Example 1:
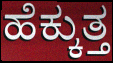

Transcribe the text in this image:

ಹೆಕ್ಕುತ್ತ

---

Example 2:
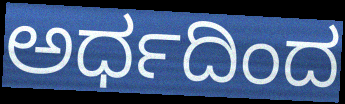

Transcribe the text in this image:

ಅರ್ಧದಿಂದ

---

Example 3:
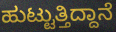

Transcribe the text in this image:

ಹುಟ್ಟುತ್ತಿದ್ದಾನೆ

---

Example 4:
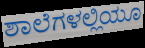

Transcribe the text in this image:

ಶಾಲೆಗಳಲ್ಲಿಯೂ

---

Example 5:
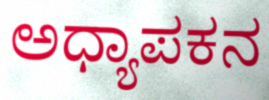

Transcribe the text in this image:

ಅಧ್ಯಾಪಕನ